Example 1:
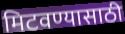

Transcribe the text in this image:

मिटवण्यासाठी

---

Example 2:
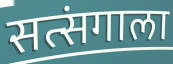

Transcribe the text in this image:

सत्संगाला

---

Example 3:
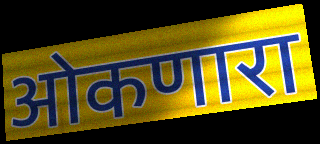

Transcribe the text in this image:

ओकणारा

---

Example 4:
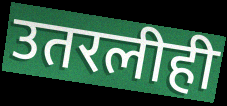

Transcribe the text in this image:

उतरलीही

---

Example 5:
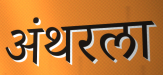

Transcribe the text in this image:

अंथरला